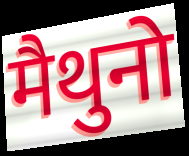
मैथुनो